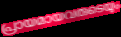
പ്രായമായവരുടെയും